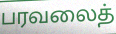
பரவலைத்